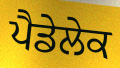
ਪੈਡੇਲੇਕ